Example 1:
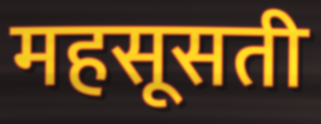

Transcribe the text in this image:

महसूसती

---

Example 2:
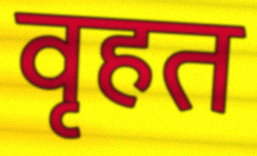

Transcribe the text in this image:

वृहत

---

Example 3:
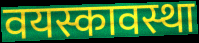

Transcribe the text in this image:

वयस्कावस्था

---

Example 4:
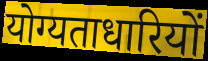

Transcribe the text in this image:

योग्यताधारियों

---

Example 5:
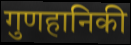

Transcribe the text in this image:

गुणहानिकी